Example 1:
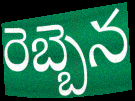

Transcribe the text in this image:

రెబ్బెన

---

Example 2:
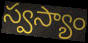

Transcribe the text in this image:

స్వస్యాం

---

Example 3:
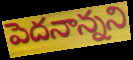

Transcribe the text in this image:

పెదనాన్నని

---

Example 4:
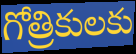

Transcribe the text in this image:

గోత్రికులకు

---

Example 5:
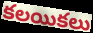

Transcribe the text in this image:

కలయికలు